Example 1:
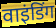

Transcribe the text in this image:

वाइंडिंग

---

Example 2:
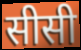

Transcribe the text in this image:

सीसी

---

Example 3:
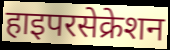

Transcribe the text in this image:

हाइपरसेक्रेशन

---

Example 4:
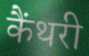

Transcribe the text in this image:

कैंथरी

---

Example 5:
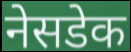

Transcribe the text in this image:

नेसडेक